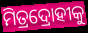
ମିତ୍ରଦ୍ରୋହୀକୁ